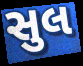
સુલ